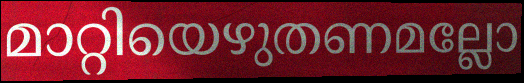
മാറ്റിയെഴുതണമല്ലോ